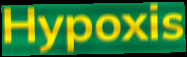
Hypoxis